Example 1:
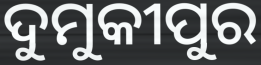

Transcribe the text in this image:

ଦୁମୁକୀପୁର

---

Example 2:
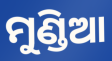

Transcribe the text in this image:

ମୁଣ୍ଡିଆ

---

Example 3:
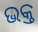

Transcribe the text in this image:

ଭକ୍ତ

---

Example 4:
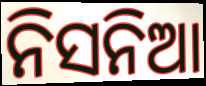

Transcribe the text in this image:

ନିସନିଆ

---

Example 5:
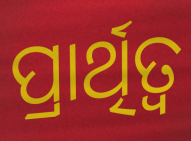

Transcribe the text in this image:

ପ୍ରାର୍ଥିତ୍ୱ